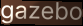
gazebo